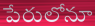
పేరులోనూ